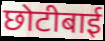
छोटीबाई